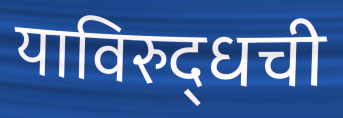
याविरुद्धची